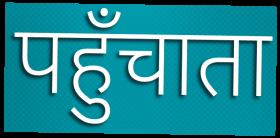
पहुँचाता